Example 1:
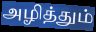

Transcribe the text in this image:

அழித்தும்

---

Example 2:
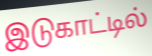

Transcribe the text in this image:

இடுகாட்டில்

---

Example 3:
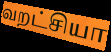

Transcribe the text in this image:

வறட்சியா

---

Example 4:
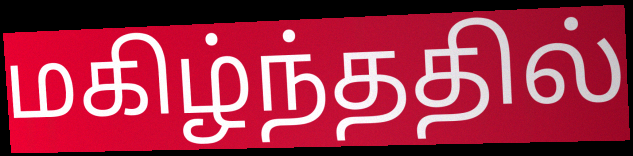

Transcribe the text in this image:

மகிழ்ந்ததில்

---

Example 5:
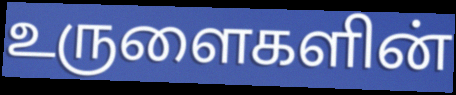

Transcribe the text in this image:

உருளைகளின்